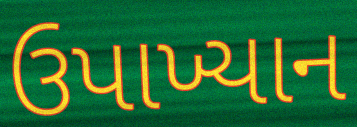
ઉપાખ્યાન